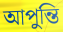
আপুন্তি